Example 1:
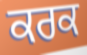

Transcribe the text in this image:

ਕਰਕ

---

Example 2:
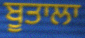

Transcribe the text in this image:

ਬੂਤਾਲਾ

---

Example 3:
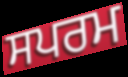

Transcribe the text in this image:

ਸਪਰਮ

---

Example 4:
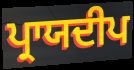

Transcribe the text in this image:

ਪ੍ਰਾਯਦੀਪ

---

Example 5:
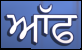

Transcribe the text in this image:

ਆੱਫ